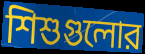
শিশুগুলোর